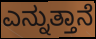
ಎನ್ನುತ್ತಾನೆ